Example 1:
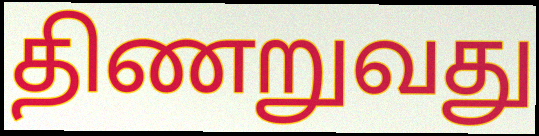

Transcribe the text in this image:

திணறுவது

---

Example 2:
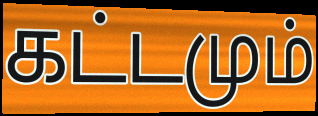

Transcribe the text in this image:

கட்டமும்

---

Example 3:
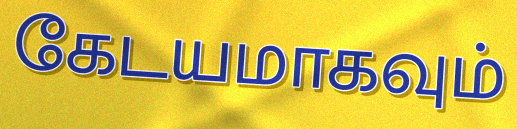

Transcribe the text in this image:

கேடயமாகவும்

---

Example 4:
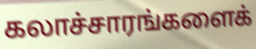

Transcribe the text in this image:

கலாச்சாரங்களைக்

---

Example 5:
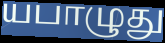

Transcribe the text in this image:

யபாழுது